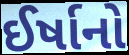
ઈર્ષાનો